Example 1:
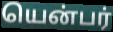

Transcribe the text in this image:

யென்பர்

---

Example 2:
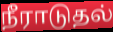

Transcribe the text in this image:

நீராடுதல்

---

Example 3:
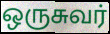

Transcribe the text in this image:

ஒருசுவர்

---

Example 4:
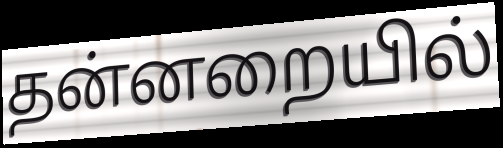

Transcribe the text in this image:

தன்னறையில்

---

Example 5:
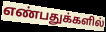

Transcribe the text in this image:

எண்பதுக்களில்